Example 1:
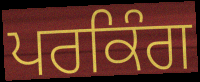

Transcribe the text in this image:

ਪਰਕਿੰਗ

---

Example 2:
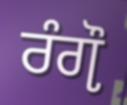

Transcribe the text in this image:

ਰੰਗੵੌ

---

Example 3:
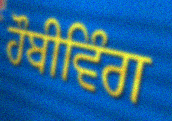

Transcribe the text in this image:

ਹੌਬੀਵਿੰਗ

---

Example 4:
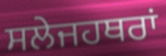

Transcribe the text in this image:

ਸਲੇਜਹਥਰਾਂ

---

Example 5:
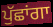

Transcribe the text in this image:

ਪੁੱਛਾਂਗਾ